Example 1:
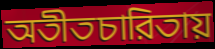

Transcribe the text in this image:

অতীতচারিতায়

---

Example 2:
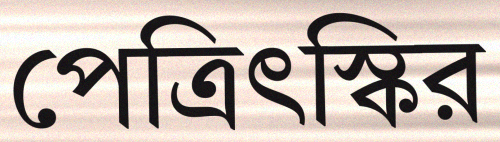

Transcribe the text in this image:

পেত্রিৎস্কির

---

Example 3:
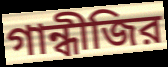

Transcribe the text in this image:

গান্ধীজির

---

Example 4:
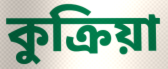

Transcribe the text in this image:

কুক্রিয়া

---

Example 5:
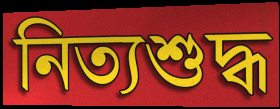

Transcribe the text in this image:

নিত্যশুদ্ধ